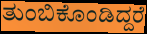
ತುಂಬಿಕೊಂಡಿದ್ದರೆ